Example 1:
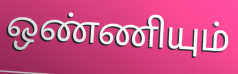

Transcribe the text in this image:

ஒண்ணியும்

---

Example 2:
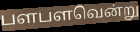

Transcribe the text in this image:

பளபளவென்று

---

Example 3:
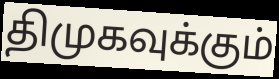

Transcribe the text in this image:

திமுகவுக்கும்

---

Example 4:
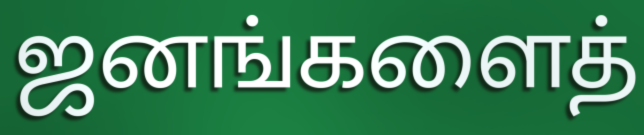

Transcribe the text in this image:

ஜனங்களைத்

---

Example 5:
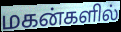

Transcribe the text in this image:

மகன்களில்